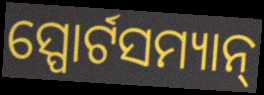
ସ୍ପୋର୍ଟସମ୍ୟାନ୍